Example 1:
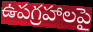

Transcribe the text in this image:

ఉపగ్రహాలపై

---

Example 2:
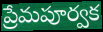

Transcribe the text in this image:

ప్రేమపూర్వక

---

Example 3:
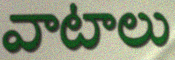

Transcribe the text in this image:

వాటాలు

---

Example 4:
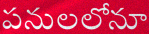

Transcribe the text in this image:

పనులలోనూ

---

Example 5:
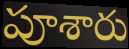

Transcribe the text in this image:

పూశారు